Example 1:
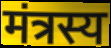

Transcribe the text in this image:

मंत्रस्य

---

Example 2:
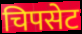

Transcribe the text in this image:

चिपसेट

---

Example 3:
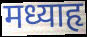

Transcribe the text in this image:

मध्याहृ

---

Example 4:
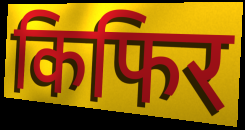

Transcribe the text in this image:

किफिर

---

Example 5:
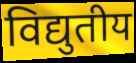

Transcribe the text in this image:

विद्युतीय